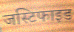
जस्टिफाइड